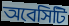
অবেসিটি